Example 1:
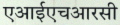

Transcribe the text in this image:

एआईएचआरसी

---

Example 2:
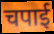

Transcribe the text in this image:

चपाई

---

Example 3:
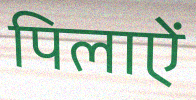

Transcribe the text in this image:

पिलाऐं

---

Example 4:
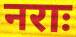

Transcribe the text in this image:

नराः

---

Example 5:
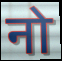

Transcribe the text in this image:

नो